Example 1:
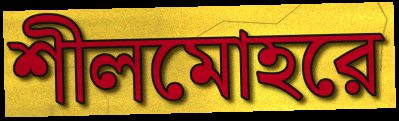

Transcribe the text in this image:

শীলমোহরে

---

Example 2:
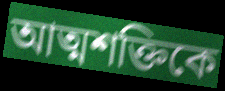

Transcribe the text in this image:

আত্মশক্তিকে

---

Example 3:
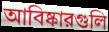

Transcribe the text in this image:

আবিষ্কারগুলি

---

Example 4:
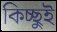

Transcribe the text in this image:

কিচ্ছুই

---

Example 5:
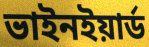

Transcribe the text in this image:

ভাইনইয়ার্ড